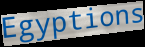
Egyptions